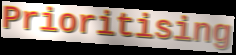
Prioritising